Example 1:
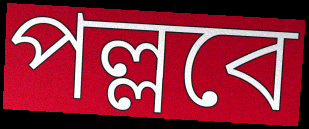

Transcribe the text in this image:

পল্লবে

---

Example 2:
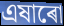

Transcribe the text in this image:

এষাৰো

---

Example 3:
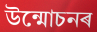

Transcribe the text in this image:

উন্মোচনৰ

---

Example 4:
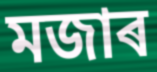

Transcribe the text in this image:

মজাৰ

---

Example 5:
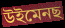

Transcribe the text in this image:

উইমেনছ